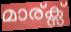
മാര്ക്സ്